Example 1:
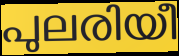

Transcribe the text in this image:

പുലരിയീ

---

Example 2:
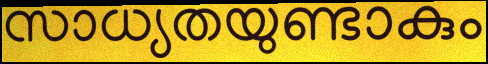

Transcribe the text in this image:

സാധ്യതയുണ്ടാകും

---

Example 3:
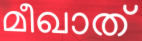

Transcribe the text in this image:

മീഖാത്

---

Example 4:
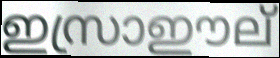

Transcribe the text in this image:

ഇസ്രാഈല്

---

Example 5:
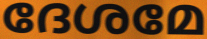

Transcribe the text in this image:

ദേശമേ